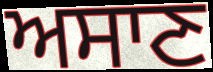
ਅਸਾਣ